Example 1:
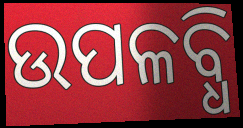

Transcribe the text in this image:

ଉପଳବ୍ଧି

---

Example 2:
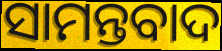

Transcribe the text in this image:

ସାମନ୍ତବାଦ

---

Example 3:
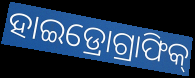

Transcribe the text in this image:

ହାଇଡ୍ରୋଗ୍ରାଫିକ୍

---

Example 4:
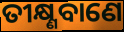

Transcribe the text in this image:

ତୀକ୍ଷ୍ଣବାଣେ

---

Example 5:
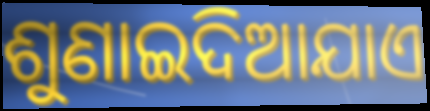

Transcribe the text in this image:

ଶୁଣାଇଦିଆଯାଏ